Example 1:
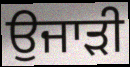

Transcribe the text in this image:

ਉਜਾੜੀ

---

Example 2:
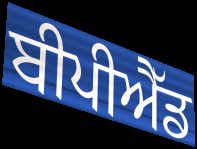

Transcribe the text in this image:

ਬੀਪੀਐੱਡ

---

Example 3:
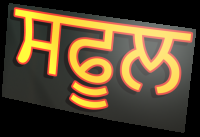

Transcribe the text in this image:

ਸਫੂਲ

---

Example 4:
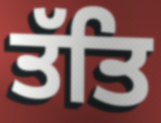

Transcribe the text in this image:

ਤੱਤਿ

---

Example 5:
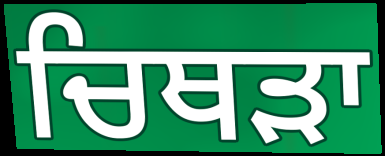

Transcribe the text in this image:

ਚਿਥੜਾ